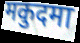
मकुदमा